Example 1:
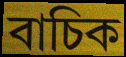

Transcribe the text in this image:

বাচিক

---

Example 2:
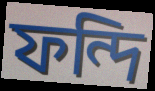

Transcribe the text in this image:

ফন্দি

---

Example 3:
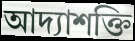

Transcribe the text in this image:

আদ্যাশক্তি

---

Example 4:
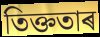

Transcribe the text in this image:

তিক্ততাৰ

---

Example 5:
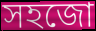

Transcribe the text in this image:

সহজো